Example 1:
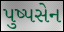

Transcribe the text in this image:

પુષ્પસેન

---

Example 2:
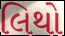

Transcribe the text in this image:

લિથો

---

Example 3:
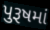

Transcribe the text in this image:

પુરૂષમાં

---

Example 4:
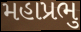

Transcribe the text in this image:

મહાપ્રભુ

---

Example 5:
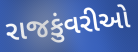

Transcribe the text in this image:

રાજકુંવરીઓ